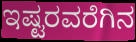
ಇಷ್ಟರವರೆಗಿನ